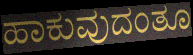
ಹಾಕುವುದಂತೂ